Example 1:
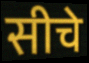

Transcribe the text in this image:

सीचे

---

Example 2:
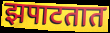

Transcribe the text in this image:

झपाटतात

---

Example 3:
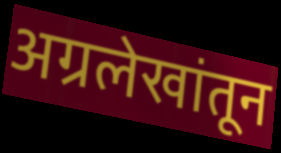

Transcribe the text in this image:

अग्रलेखांतून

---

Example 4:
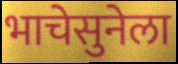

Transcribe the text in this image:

भाचेसुनेला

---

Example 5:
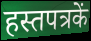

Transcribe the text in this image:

हस्तपत्रकें